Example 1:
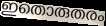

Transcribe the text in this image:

ഇതൊരുതരം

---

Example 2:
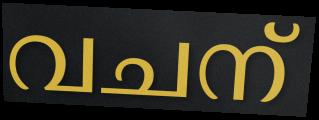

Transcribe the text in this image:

വചന്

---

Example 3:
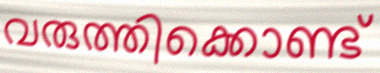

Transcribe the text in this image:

വരുത്തിക്കൊണ്ട്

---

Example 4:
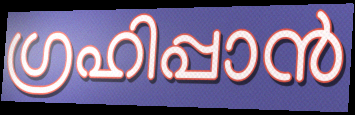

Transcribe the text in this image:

ഗ്രഹിപ്പാൻ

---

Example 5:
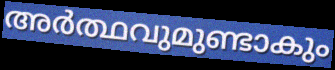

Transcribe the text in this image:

അർത്ഥവുമുണ്ടാകും